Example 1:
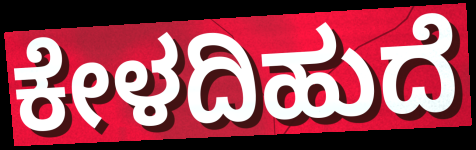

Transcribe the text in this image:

ಕೇಳದಿಹುದೆ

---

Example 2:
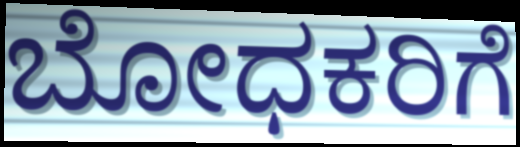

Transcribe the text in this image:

ಬೋಧಕರಿಗೆ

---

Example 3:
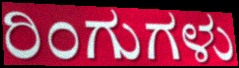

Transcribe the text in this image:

ರಿಂಗುಗಳು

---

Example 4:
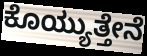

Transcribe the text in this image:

ಕೊಯ್ಯುತ್ತೇನೆ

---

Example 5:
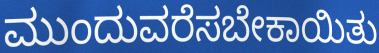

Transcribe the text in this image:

ಮುಂದುವರೆಸಬೇಕಾಯಿತು